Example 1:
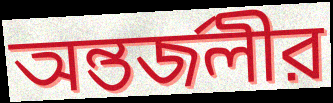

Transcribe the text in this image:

অন্তর্জলীর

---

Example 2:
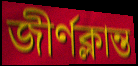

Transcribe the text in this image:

জীর্ণক্লান্ত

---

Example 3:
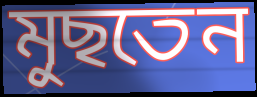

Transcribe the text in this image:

মুছতেন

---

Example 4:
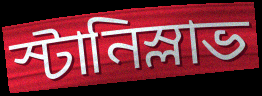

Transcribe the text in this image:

স্টানিস্লাভ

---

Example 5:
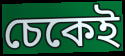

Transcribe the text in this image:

চেকেই